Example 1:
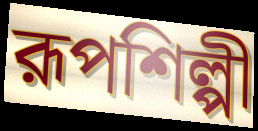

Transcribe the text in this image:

রূপশিল্পী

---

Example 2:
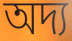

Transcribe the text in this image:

অদ্য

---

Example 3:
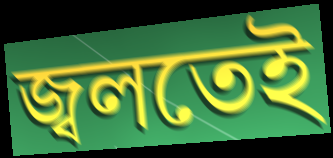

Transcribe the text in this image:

জ্বলতেই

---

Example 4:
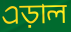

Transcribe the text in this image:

এড়াল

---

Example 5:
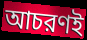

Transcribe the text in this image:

আচরণই